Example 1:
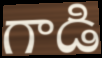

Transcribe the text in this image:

గాడి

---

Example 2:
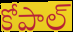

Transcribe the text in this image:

కోపాల్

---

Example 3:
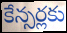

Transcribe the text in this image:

కేన్సర్లకు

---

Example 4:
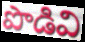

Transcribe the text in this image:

పొడివి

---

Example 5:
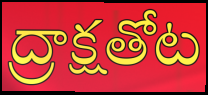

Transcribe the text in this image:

ద్రాక్షతోట